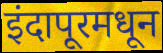
इंदापूरमधून